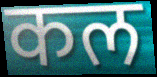
कल